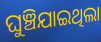
ଘୁଞ୍ଚିଯାଇଥିଲା